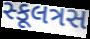
સ્કૂલત્રસ